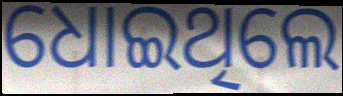
ଧୋଇଥିଲେ